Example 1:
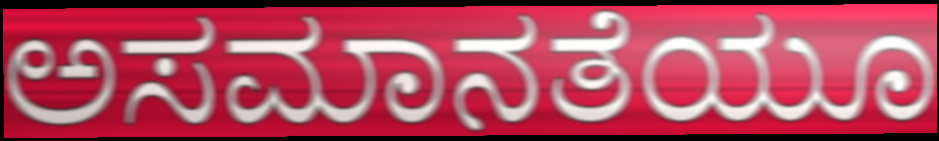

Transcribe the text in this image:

ಅಸಮಾನತೆಯೂ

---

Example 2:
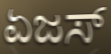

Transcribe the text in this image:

ಏಜಸ್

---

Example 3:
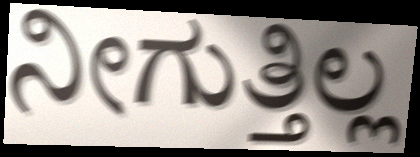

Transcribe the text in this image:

ನೀಗುತ್ತಿಲ್ಲ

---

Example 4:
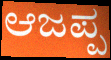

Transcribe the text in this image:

ಆಜಪ್ಪ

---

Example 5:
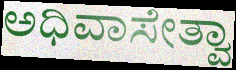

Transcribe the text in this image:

ಅಧಿವಾಸೇತ್ವಾ